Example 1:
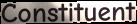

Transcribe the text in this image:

Constituent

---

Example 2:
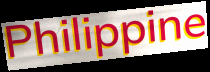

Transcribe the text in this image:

Philippine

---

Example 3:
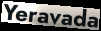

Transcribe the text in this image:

Yeravada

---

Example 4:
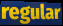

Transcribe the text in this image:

regular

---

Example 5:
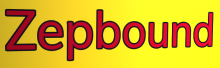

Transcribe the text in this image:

Zepbound